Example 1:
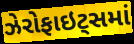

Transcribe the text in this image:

ઝેરોફાઇટ્સમાં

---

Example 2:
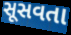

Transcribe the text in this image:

સૂસવતા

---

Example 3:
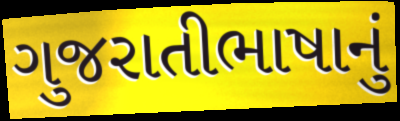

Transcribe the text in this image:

ગુજરાતીભાષાનું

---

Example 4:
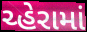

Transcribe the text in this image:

ચ્હેરામાં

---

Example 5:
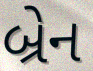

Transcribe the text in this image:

બ્રેન